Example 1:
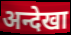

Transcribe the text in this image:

अन्देखा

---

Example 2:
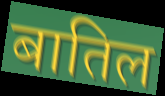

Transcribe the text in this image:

बातिल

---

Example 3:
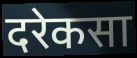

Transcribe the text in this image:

दरेकसा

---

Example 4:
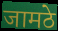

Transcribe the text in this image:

जामठे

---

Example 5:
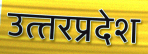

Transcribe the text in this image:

उत्‍तरप्रदेश